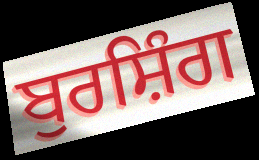
ਬੁਰਸ਼ਿੰਗ